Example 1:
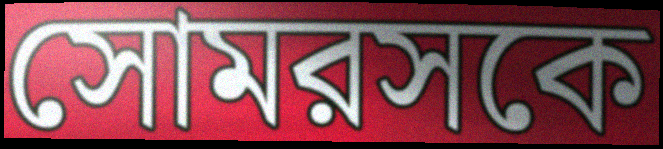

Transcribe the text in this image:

সোমরসকে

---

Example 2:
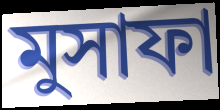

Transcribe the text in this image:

মুসাফা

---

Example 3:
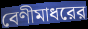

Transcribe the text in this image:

বেণীমাধরের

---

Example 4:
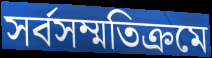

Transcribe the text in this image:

সর্বসম্মতিক্রমে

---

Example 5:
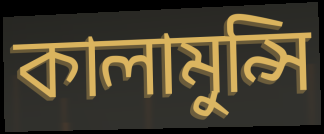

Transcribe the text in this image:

কালামুন্সি